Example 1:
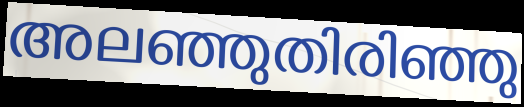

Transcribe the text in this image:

അലഞ്ഞുതിരിഞ്ഞു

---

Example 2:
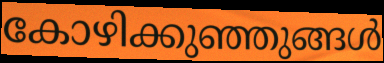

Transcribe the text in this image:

കോഴിക്കുഞ്ഞുങ്ങൾ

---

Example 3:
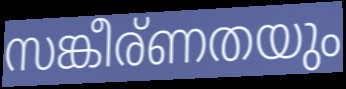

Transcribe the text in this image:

സങ്കീര്ണതയും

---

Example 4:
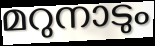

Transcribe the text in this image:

മറുനാടും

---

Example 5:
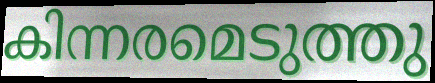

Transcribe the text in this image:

കിന്നരമെടുത്തു